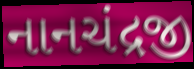
નાનચંદ્રજી